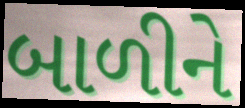
બાળીને